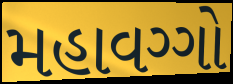
મહાવગ્ગો